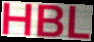
HBL